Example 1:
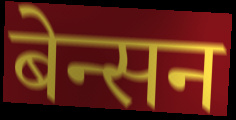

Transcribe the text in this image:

बेन्सन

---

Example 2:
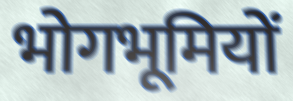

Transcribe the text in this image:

भोगभूमियों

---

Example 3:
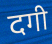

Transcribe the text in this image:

दगी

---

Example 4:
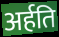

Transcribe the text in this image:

अर्हति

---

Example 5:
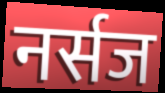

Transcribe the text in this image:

नर्सज